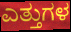
ಎತ್ತುಗಳ